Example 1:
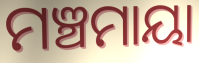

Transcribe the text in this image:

ମଞ୍ଚମାୟା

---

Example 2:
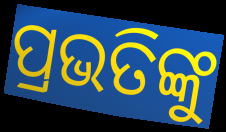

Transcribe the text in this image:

ପ୍ରଭତିଙ୍କୁ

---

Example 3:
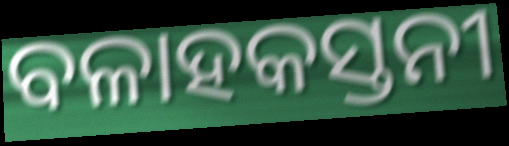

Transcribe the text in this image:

ବଳାହକସ୍ତନୀ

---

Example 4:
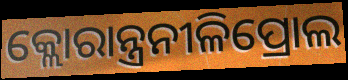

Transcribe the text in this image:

କ୍ଲୋରାନ୍ତ୍ରନୀଳିପ୍ରୋଲ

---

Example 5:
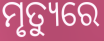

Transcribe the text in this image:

ମୃତ୍ୟୁରେ